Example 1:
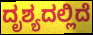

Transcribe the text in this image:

ದೃಶ್ಯದಲ್ಲಿದೆ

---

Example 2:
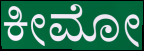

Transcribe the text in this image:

ಕೀಮೋ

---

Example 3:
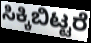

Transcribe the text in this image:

ಸಿಕ್ಕಿಬಿಟ್ಟರೆ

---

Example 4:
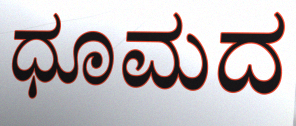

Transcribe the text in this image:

ಧೂಮದ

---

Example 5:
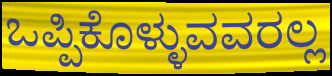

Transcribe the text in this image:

ಒಪ್ಪಿಕೊಳ್ಳುವವರಲ್ಲ